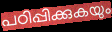
പഠിപ്പിക്കുകയും